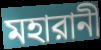
মহারানী